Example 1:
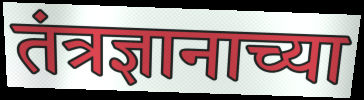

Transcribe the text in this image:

तंत्रज्ञानाच्या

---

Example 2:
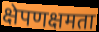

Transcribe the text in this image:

क्षेपणक्षमता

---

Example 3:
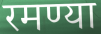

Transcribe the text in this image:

रमण्या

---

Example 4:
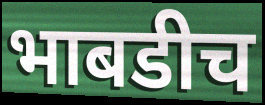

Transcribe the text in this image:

भाबडीच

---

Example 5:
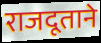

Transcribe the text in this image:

राजदूताने